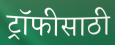
ट्रॉफीसाठी